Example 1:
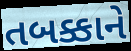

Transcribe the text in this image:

તબક્કાને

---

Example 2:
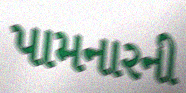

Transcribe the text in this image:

પામનારની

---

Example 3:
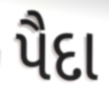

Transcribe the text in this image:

પૈદા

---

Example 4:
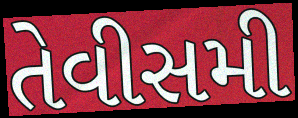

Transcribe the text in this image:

તેવીસમી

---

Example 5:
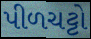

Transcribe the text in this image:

પીળચટ્ટો